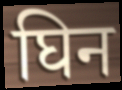
घिन